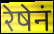
रेषेनं